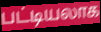
பட்டியலாக